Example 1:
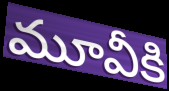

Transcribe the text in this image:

మూవీకి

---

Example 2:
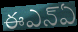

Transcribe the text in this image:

ఈఎన్ఏ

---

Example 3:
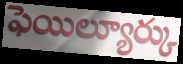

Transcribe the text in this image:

ఫెయిల్యూర్కు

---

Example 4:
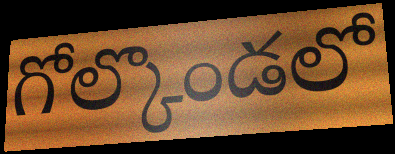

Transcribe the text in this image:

గోల్కొండలో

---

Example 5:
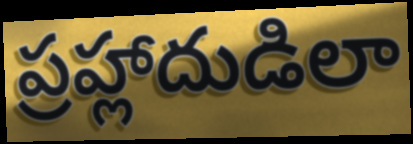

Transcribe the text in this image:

ప్రహ్లాదుడిలా